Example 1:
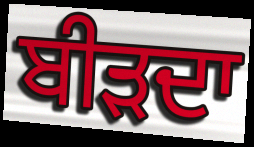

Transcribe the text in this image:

ਬੀੜਦਾ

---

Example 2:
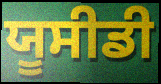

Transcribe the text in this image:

ਯੂਸੀਡੀ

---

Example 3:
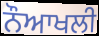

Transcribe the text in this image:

ਨੌਆਖਲੀ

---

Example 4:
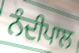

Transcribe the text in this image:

ਨੰਦੀਪਾਲ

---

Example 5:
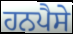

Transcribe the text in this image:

ਹਨਪੈਸੇ